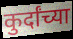
कुर्दांच्या